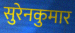
सुरेनकुमार